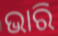
ଭାରି